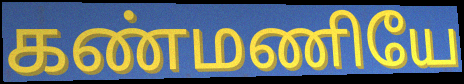
கண்மணியே